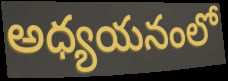
అధ్యయనంలో